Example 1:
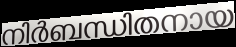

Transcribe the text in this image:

നിർബന്ധിതനായ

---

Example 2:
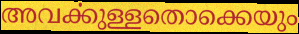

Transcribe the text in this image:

അവൎക്കുള്ളതൊക്കെയും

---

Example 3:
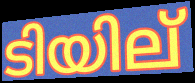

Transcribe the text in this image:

ടിയില്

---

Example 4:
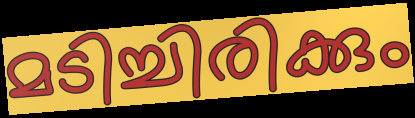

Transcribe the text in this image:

മടിച്ചിരിക്കും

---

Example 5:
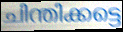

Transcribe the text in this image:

ചിന്തിക്കട്ടെ